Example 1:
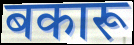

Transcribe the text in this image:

बकारू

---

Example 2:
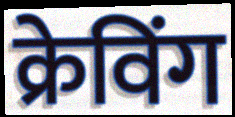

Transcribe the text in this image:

क्रेविंग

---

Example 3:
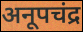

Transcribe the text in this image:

अनूपचंद्र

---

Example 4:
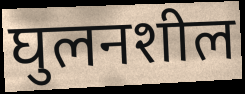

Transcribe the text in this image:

घुलनशील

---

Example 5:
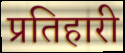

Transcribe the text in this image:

प्रतिहारी